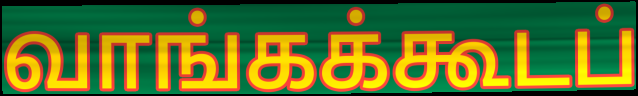
வாங்கக்கூடப்